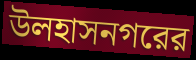
উলহাসনগরের